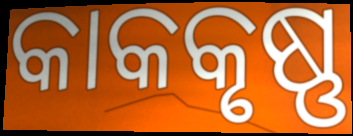
କାକକୃଷ୍ଣ